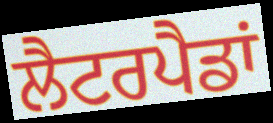
ਲੈਟਰਪੈਡਾਂ